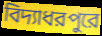
বিদ্যাধরপুরে